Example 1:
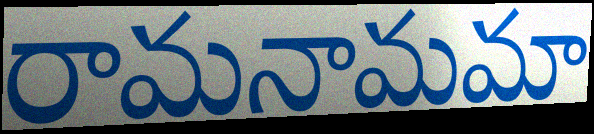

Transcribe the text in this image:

రామనామమా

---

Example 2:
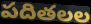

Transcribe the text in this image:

పదితలల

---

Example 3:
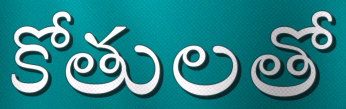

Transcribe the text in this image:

కోతులతో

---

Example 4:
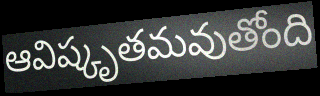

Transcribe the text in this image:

ఆవిష్కృతమవుతోంది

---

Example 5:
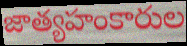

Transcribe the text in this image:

జాత్యహంకారుల